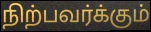
நிற்பவர்க்கும்